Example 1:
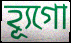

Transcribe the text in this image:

হ্যূগো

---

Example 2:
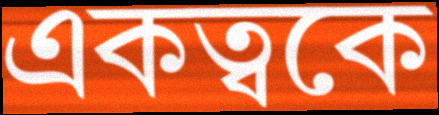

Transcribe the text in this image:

একত্বকে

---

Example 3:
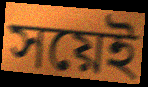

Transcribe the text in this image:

সয়েই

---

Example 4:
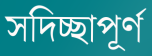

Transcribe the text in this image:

সদিচ্ছাপূর্ণ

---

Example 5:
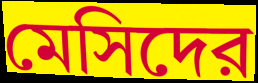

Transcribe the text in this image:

মেসিদের